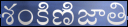
శంకిణిజాతి